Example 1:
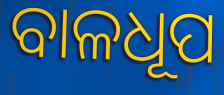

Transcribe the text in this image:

ବାଳଧୂପ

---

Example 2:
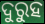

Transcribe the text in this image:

ଦୁରୁହ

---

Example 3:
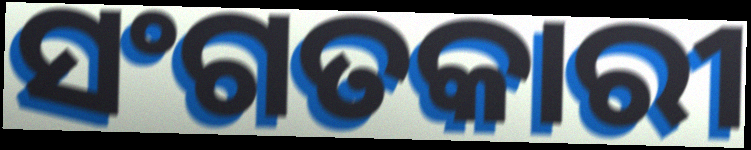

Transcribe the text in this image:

ସଂଗତକାରୀ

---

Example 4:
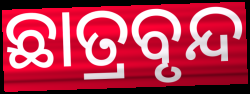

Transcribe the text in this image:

ଛାତ୍ରବୃନ୍ଦ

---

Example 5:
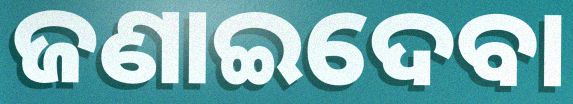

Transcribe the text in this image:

ଜଣାଇଦେବା